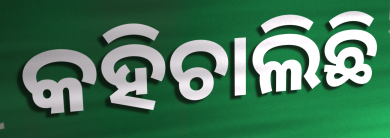
କହିଚାଲିଛି